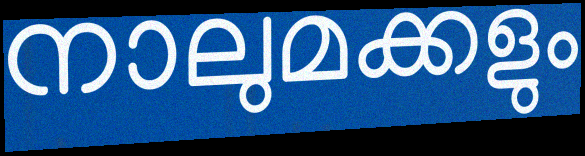
നാലുമക്കളും